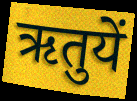
ऋतुयें